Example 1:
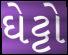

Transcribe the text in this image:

ઘેટ્ટો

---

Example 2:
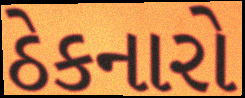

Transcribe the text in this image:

ઠેકનારો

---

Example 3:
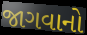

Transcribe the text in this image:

જાગવાનો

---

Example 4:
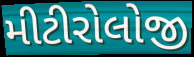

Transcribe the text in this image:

મીટીરોલોજી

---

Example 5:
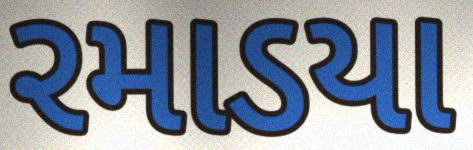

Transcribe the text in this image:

રમાડયા